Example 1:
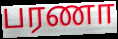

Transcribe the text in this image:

பரணா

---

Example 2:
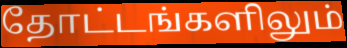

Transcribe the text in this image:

தோட்டங்களிலும்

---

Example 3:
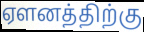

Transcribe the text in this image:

ஏளனத்திற்கு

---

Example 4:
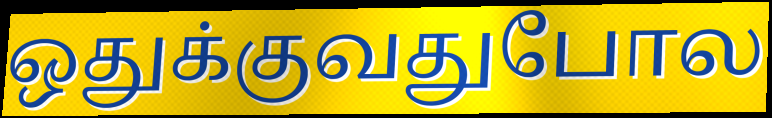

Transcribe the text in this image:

ஒதுக்குவதுபோல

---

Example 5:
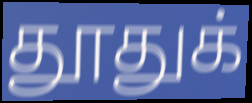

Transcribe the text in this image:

தூதுக்